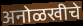
अनोळखीचे